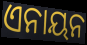
ଏନାୟନ